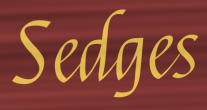
Sedges